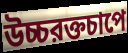
উচ্চরক্তচাপে